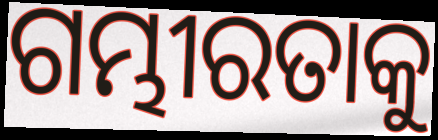
ଗମ୍ଭୀରତାକୁ